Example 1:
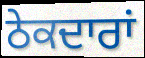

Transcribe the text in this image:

ਠੇਕਦਾਰਾਂ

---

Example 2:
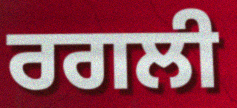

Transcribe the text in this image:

ਰਗਲੀ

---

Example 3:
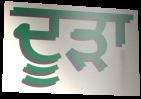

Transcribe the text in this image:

ਦੂੜਾ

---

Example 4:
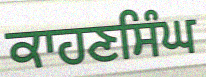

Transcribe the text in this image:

ਕਾਹਣਸਿੰਘ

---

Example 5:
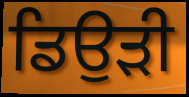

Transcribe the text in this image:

ਡਿਉੜੀ